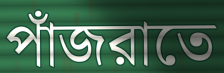
পাঁজরাতে